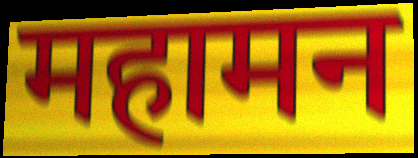
महामन